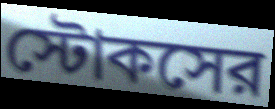
স্টোকসের